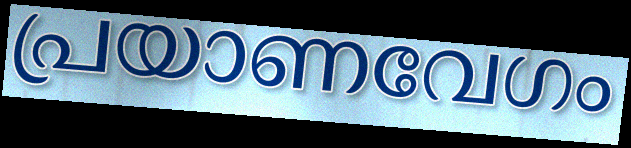
പ്രയാണവേഗം